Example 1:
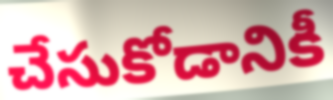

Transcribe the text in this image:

చేసుకోడానికీ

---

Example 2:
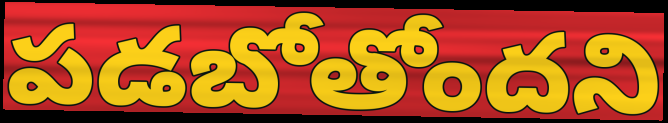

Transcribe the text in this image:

పడబోతోందని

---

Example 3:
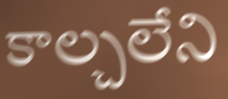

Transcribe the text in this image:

కాల్చలేని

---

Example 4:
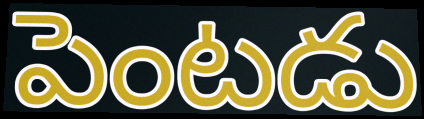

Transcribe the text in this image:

పెంటడు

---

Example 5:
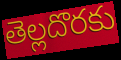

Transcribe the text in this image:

తెల్లదొరకు